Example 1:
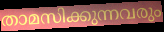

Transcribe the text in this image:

താമസിക്കുന്നവരും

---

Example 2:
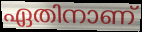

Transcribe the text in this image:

ഏതിനാണ്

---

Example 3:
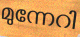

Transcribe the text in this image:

മുന്നേറി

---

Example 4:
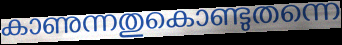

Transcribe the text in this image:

കാണുന്നതുകൊണ്ടുതന്നെ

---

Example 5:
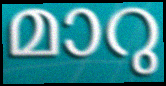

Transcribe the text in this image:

മാറു